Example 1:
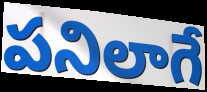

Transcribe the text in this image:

పనిలాగే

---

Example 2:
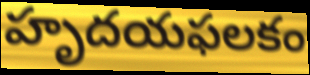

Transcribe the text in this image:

హృదయఫలకం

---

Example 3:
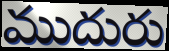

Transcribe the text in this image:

ముదురు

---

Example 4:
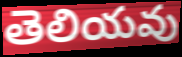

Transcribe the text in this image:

తెలియవు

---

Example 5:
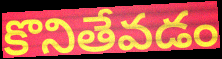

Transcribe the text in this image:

కొనితేవడం